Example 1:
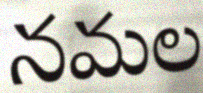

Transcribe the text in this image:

నమల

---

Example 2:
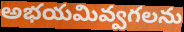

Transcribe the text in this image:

అభయమివ్వగలను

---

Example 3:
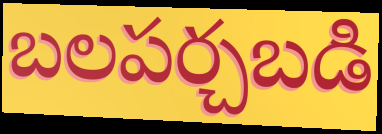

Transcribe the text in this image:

బలపర్చబడి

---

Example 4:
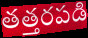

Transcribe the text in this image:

తత్తరపడి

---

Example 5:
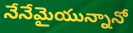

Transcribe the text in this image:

నేనేమైయున్నానో